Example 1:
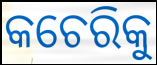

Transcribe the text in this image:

କଚେରିକୁ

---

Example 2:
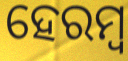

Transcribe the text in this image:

ହେରମ୍ୱ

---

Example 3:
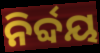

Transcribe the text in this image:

ନିର୍ବ୍ଦୟ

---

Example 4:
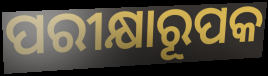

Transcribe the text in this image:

ପରୀକ୍ଷାରୂପକ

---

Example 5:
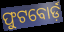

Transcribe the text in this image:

ଫୁଟବୋର୍ଡ଼